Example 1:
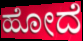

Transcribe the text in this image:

ಹೋದೆ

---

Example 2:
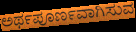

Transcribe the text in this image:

ಅರ್ಥಪೂರ್ಣವಾಗಿಸುವ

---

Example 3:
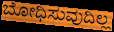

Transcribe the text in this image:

ಬೋಧಿಸುವುದಿಲ್ಲ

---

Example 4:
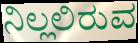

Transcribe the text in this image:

ನಿಲ್ಲಲಿರುವ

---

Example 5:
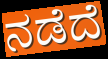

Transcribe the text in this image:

ನಡೆದೆ